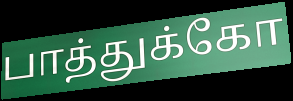
பாத்துக்கோ